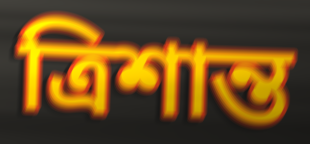
ত্রিশান্ত